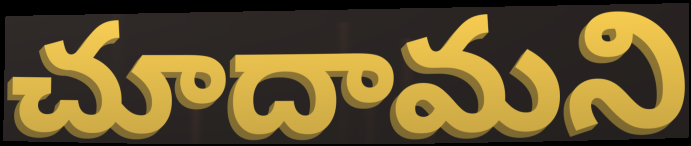
చూదామని